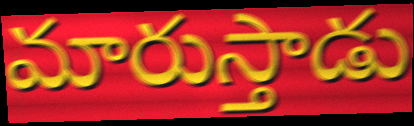
మారుస్తాడు